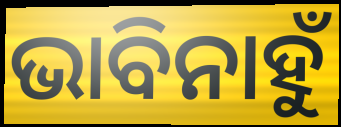
ଭାବିନାହୁଁ